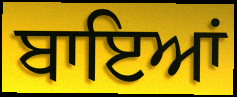
ਬਾਇਆਂ